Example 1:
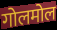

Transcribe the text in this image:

गोलमोल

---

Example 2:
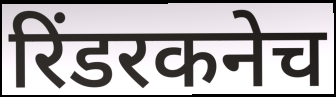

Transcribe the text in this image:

रिंडरकनेच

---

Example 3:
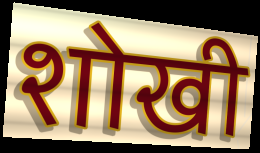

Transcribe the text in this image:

शोखी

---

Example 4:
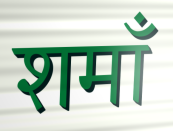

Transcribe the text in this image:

शमाँ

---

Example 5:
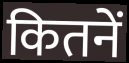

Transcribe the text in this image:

कितनें